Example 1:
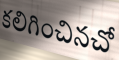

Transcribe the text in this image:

కలిగించినచో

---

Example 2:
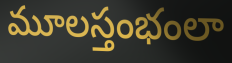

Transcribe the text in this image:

మూలస్తంభంలా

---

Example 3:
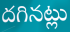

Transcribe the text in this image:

దగినట్లు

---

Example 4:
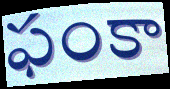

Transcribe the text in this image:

ఫంకా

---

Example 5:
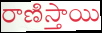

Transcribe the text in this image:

రాణిస్తాయి